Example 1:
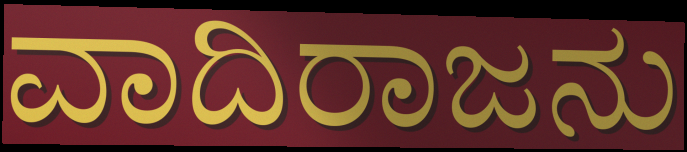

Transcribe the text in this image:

ವಾದಿರಾಜನು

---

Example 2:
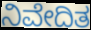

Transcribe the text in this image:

ನಿವೇದಿತ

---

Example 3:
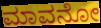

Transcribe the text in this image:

ಮಾವನೋ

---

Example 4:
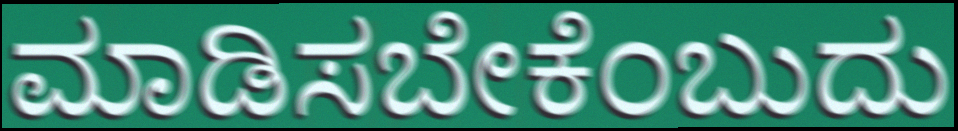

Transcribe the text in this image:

ಮಾಡಿಸಬೇಕೆಂಬುದು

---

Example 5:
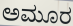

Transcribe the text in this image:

ಅಮೂರ